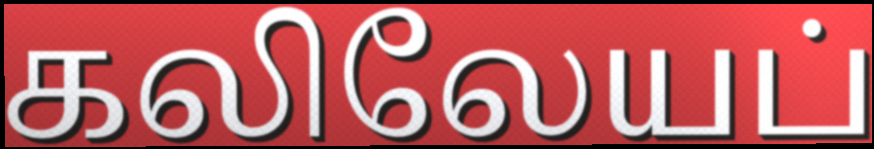
கலிலேயப்